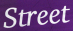
Street